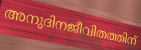
അനുദിനജീവിതത്തിന്